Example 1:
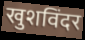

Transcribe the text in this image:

खुशविंदर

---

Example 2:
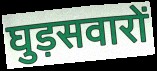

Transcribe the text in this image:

घुड़सवारों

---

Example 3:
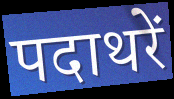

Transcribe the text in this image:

पदाथरें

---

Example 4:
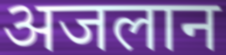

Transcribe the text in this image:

अजलान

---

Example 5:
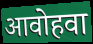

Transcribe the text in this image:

आवोहवा